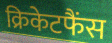
क्रिकेटफैंस